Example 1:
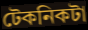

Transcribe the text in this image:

টেকনিকটা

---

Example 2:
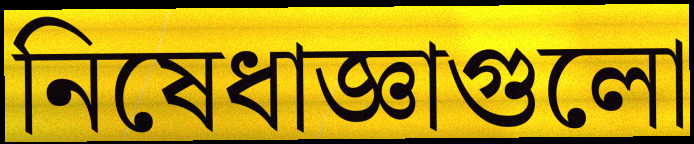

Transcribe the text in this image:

নিষেধাজ্ঞাগুলো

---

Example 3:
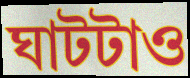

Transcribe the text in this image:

ঘাটটাও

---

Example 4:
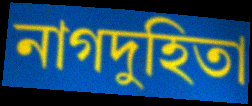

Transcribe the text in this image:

নাগদুহিতা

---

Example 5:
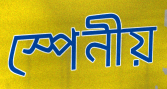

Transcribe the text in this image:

স্পেনীয়